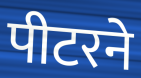
पीटरने